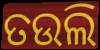
ତଉଲି